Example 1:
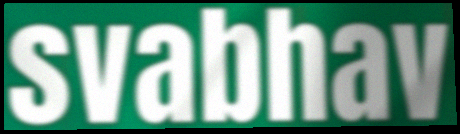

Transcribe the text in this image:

svabhav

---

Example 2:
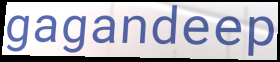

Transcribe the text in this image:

gagandeep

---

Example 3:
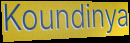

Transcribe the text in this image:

Koundinya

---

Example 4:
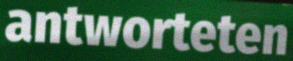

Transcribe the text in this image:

antworteten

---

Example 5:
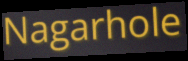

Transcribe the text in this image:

Nagarhole